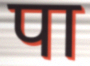
पा